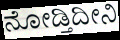
ನೋಡ್ತಿದೀನಿ